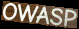
OWASP